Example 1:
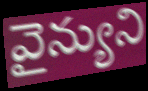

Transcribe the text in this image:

వైన్యుని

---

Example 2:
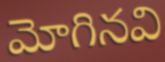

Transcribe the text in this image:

మోగినవి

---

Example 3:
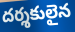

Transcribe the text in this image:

దర్శకులైన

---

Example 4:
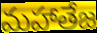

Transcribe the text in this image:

మహాతేజ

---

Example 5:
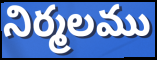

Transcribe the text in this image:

నిర్మలము